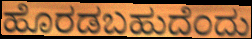
ಹೊರಡಬಹುದೆಂದು